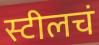
स्टीलचं